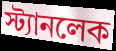
স্ট্যানলেক